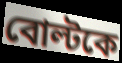
বোল্টকে